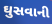
ઘુસવાની